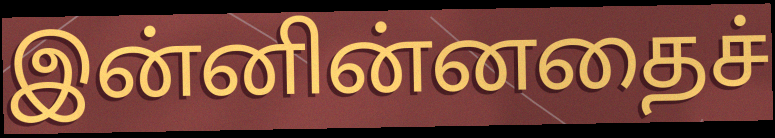
இன்னின்னதைச்